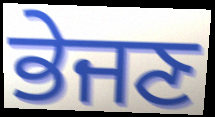
ਭੇਜਣ